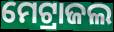
ମେଟ୍ରାଜଲ